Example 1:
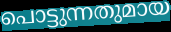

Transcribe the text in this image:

പൊട്ടുന്നതുമായ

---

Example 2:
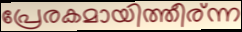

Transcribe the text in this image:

പ്രേരകമായിത്തീര്ന്ന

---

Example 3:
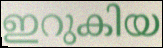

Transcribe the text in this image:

ഇറുകിയ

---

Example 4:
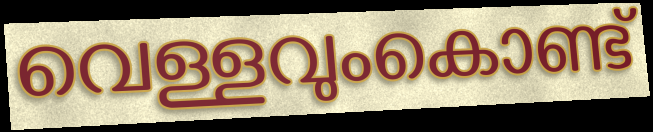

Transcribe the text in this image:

വെള്ളവുംകൊണ്ട്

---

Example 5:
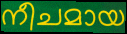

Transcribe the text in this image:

നീചമായ